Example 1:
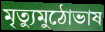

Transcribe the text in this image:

মৃত্যুমুঠোভাষ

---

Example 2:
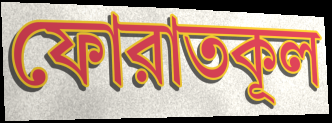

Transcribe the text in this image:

ফোরাতকূল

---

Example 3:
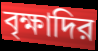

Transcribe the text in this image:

বৃক্ষাদির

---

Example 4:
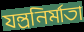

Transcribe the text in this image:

যন্ত্রনির্মাতা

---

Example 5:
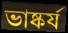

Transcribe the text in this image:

ভাষ্কর্য